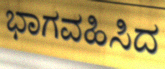
ಭಾಗವಹಿಸಿದ